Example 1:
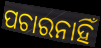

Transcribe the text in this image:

ପଚାରନାହିଁ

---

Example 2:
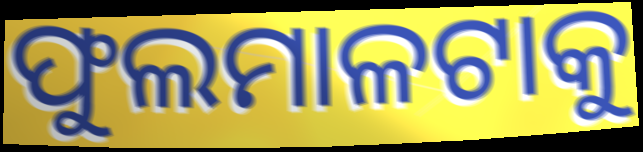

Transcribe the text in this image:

ଫୁଲମାଳଟାକୁ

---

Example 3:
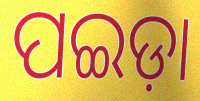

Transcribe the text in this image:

ପଇଡ଼ା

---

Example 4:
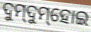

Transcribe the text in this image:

ଦୁମ୍‌ଦୁମ୍‌ହୋଇ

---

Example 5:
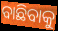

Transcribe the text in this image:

ବାଛିବାକୁ